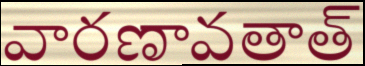
వారణావతాత్